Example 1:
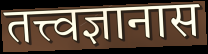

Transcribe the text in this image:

तत्त्वज्ञानास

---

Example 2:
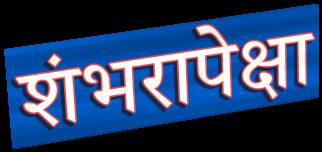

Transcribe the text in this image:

शंभरापेक्षा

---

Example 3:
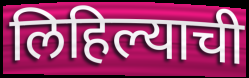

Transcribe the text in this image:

लिहिल्याची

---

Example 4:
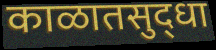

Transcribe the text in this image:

काळातसुद्धा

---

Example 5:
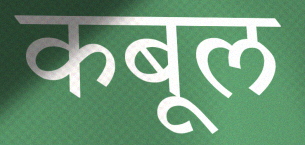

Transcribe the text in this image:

कबूल